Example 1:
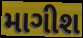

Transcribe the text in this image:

માગીશ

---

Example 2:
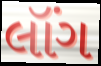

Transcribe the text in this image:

લૉંગ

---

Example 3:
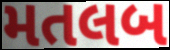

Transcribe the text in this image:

મતલબ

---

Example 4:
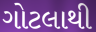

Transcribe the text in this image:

ગોટલાથી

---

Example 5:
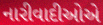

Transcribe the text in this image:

નારીવાદીઓએ